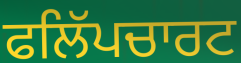
ਫਲਿੱਪਚਾਰਟ